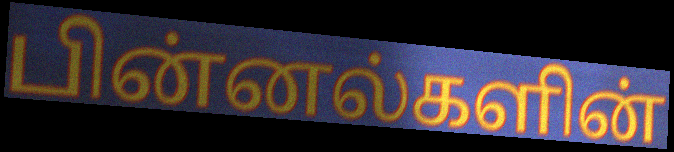
பின்னல்களின்